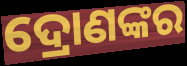
ଦ୍ରୋଣଙ୍କର